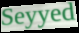
Seyyed